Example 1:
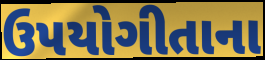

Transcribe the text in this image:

ઉપયોગીતાના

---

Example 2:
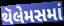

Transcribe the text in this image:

થૅલેમસમાં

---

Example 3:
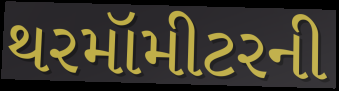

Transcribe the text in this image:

થરમૉમીટરની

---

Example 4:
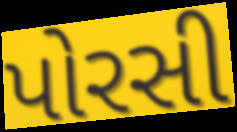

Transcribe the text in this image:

પોરસી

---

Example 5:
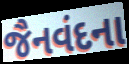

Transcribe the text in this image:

જૈનવંદના